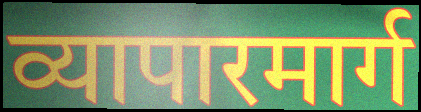
व्यापारमार्ग